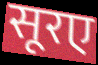
सूरए